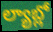
ల్యాబ్లో